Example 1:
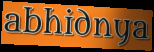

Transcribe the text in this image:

abhidnya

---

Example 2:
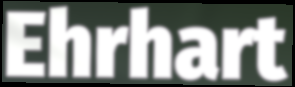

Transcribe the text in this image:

Ehrhart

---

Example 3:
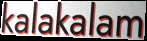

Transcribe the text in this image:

kalakalam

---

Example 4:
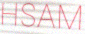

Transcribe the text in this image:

HSAM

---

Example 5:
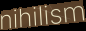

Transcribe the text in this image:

nihilism